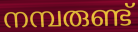
നമ്പരുണ്ട്